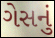
ગેસનું